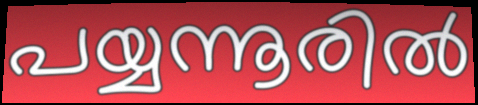
പയ്യന്നൂരിൽ